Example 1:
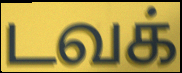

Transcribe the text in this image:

டவக்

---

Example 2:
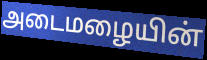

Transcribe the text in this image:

அடைமழையின்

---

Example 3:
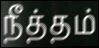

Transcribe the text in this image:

நீத்தம்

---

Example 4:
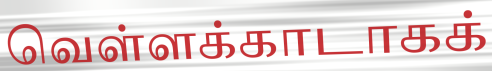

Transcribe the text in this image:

வெள்ளக்காடாகக்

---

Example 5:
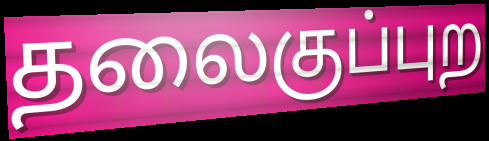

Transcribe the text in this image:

தலைகுப்புற